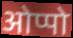
ओप्पो